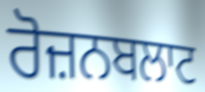
ਰੋਜ਼ਨਬਲਾਟ